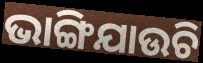
ଭାଙ୍ଗିଯାଉଚି